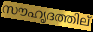
സൗഹൃദത്തില്